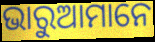
ଭାରୁଆମାନେ